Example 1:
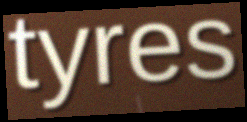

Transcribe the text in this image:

tyres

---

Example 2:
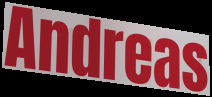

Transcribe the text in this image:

Andreas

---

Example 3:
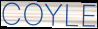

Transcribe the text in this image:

COYLE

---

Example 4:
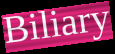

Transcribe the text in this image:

Biliary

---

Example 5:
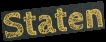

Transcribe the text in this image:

Staten